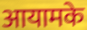
आयामके